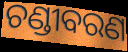
ଚଣ୍ଡୀବରଣ